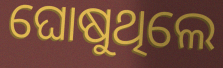
ଘୋଷୁଥିଲେ